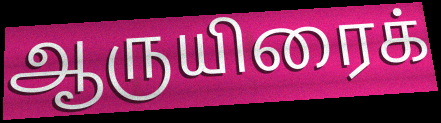
ஆருயிரைக்